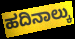
ಹದಿನಾಲ್ಕು